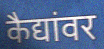
कैद्यांवर